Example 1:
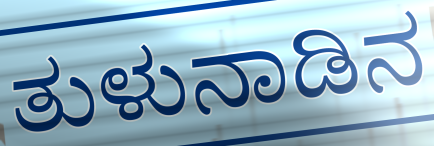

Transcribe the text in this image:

ತುಳುನಾಡಿನ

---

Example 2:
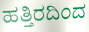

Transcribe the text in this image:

ಹತ್ತಿರದಿಂದ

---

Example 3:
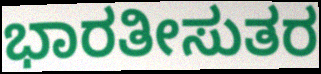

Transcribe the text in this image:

ಭಾರತೀಸುತರ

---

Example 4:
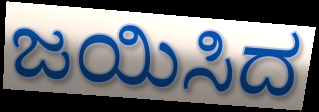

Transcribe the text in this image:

ಜಯಿಸಿದ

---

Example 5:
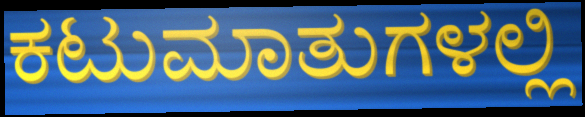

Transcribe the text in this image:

ಕಟುಮಾತುಗಳಲ್ಲಿ